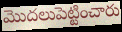
మొదలుపెట్టించారు